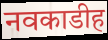
नवकाडीह